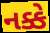
નક્કે